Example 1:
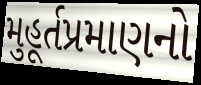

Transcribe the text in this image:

મુહૂર્તપ્રમાણનો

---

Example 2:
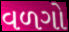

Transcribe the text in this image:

વળગો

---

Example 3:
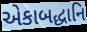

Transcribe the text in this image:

એકાબદ્ધાનિ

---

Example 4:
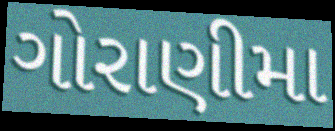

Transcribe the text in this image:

ગોરાણીમા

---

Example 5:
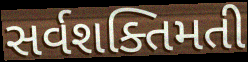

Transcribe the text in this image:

સર્વશક્તિમતી